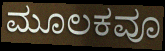
ಮೂಲಕವೂ